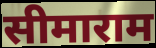
सीमाराम